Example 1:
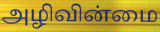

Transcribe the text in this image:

அழிவின்மை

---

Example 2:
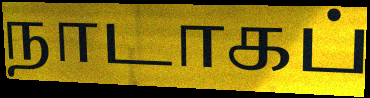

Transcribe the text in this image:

நாடாகப்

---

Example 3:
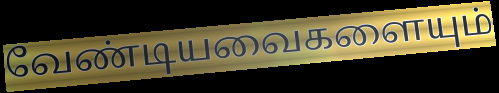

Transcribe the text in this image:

வேண்டியவைகளையும்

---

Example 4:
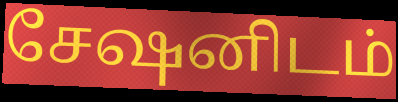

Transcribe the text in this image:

சேஷனிடம்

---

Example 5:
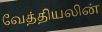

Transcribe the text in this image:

வேத்தியலின்